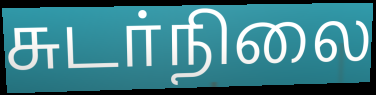
சுடர்நிலை